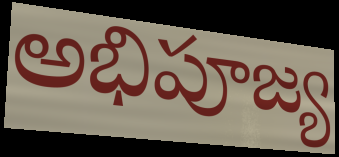
అభిపూజ్య